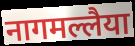
नागमल्लैया